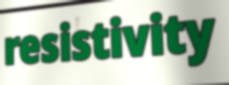
resistivity